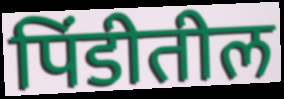
पिंडीतील